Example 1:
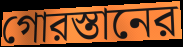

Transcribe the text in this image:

গোরস্তানের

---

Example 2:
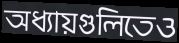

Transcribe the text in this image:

অধ্যায়গুলিতেও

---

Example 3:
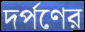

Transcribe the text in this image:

দর্পণের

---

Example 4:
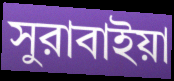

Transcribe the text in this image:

সুরাবাইয়া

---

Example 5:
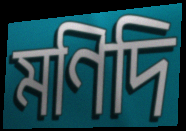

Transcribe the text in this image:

মণিদি